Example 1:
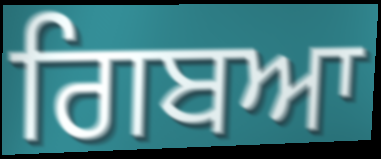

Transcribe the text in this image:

ਗਿਬਆ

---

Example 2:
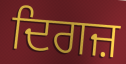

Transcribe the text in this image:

ਦਿਗਜ਼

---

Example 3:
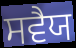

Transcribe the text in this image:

ਸਵੈਯ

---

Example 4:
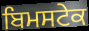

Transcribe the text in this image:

ਬਿਮਸਟੇਕ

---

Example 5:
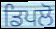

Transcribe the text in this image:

ਡਿਪਲੋ